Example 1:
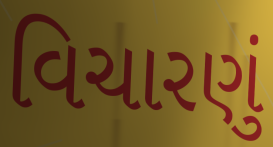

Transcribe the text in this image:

વિચારણું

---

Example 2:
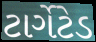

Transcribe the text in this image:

ટાર્ગેટેડ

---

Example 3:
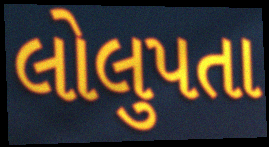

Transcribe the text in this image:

લોલુપતા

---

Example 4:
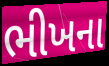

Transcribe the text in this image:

ભીખના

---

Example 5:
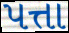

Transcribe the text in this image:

પત્તા